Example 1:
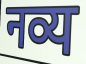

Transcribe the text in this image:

नव्य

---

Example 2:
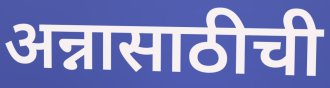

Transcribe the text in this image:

अन्नासाठीची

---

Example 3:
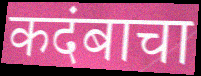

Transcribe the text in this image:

कदंबाचा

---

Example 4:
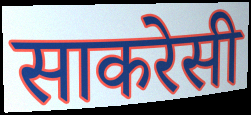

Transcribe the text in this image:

साकरेसी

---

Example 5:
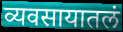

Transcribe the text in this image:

व्यवसायातलं